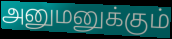
அனுமனுக்கும்